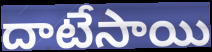
దాటేసాయి